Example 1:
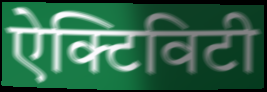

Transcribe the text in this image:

ऐक्टिविटी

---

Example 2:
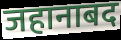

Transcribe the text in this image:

जहानाबद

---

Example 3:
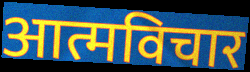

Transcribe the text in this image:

आत्मविचार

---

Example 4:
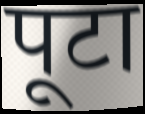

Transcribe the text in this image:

पूटा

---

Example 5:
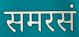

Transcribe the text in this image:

समरसं